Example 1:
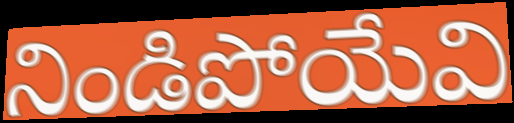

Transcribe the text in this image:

నిండిపోయేవి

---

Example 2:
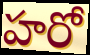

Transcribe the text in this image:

హరో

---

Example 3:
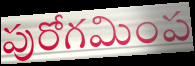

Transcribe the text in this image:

పురోగమింప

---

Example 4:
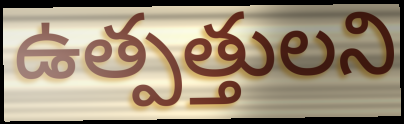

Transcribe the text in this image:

ఉత్పత్తులని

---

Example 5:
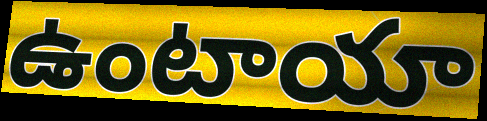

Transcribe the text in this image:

ఉంటాయా